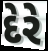
દેરે